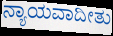
ನ್ಯಾಯವಾದೀತು